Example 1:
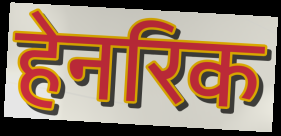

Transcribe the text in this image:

हेनरिक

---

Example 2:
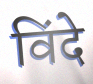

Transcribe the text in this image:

विंदे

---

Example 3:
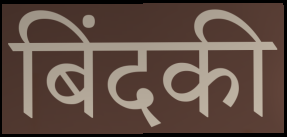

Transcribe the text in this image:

बिंदकी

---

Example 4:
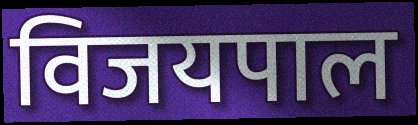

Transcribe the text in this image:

विजयपाल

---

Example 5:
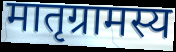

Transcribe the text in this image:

मातृग्रामस्य